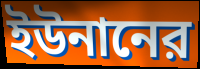
ইউনানের